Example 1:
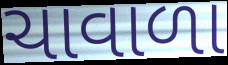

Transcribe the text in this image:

ચાવાળા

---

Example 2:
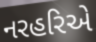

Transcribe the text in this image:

નરહરિએ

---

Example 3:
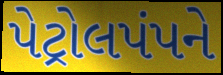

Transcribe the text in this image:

પેટ્રોલપંપને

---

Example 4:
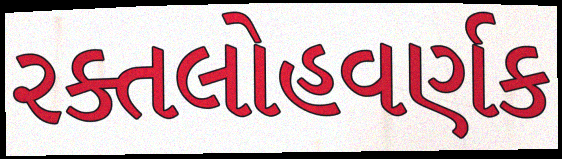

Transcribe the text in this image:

રક્તલોહવર્ણક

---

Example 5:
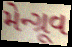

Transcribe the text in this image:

મેન્ગ્રૂવ